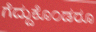
ಗೆದ್ದುಕೊಂಡರೂ